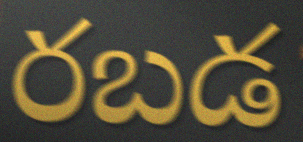
రబడ